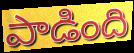
పాడింది